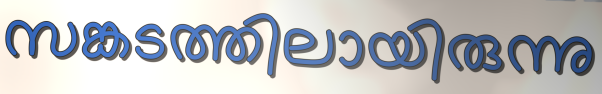
സങ്കടത്തിലായിരുന്നു